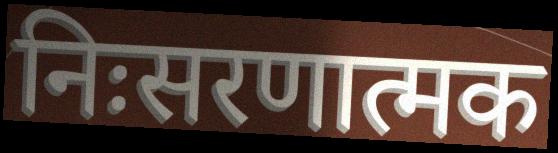
निःसरणात्मक